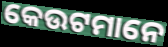
କେଉଟମାନେ